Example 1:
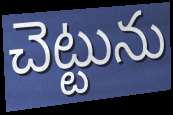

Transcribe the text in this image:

చెట్టును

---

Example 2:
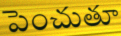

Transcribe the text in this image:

పెంచుతూ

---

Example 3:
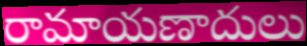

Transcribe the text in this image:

రామాయణాదులు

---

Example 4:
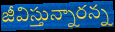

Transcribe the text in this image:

జీవిస్తున్నారన్న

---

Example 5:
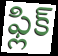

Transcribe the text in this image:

ఫ్లిక్